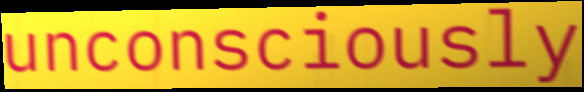
unconsciously